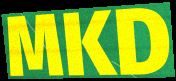
MKD